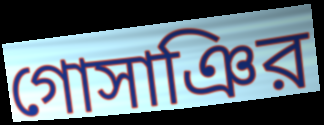
গোসাঞির